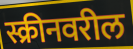
स्क्रीनवरील